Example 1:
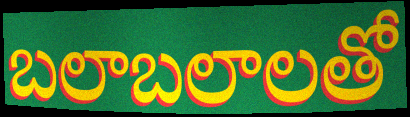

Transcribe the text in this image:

బలాబలాలతో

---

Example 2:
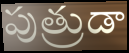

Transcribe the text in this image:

పుత్రుడా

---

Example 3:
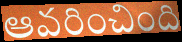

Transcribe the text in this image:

ఆవరించింది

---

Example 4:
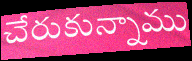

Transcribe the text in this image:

చేరుకున్నాము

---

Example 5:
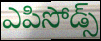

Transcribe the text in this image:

ఎపిసోడ్స్